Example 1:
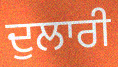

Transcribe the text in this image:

ਦੁਲਾਰੀ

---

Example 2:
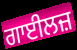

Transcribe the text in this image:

ਗਾਈਲਜ਼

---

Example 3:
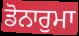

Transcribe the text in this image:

ਡੋਨਾਰੁਮਾ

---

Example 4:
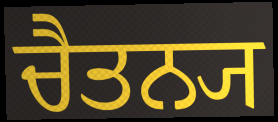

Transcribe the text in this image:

ਚੈਤਨ੍ਯ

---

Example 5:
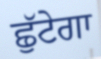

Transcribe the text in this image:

ਛੁੱਟੇਗਾ